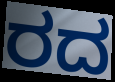
ರದ